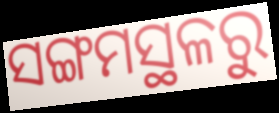
ସଙ୍ଗମସ୍ଥଳରୁ